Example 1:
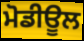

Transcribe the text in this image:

ਮੋਡੀਊਲ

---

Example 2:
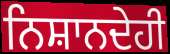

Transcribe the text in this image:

ਨਿਸ਼ਾਨਦੇਹੀ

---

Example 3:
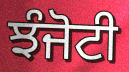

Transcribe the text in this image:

ਝੰਜੋਟੀ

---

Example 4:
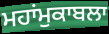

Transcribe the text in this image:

ਮਹਾਂਮੁਕਾਬਲਾ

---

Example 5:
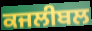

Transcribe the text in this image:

ਕਜਲੀਬਲ